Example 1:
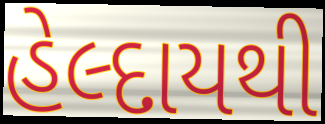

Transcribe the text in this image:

હેલ્દાયથી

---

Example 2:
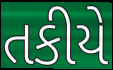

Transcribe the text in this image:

તકીયે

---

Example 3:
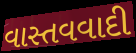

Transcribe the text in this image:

વાસ્તવવાદી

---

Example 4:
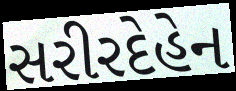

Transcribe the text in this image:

સરીરદેહેન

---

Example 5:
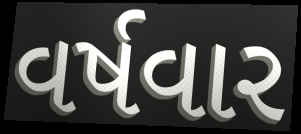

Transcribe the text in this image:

વર્ષવાર